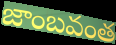
జాంబవంత